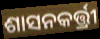
ଶାସନକର୍ତ୍ତ୍ରୀ